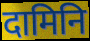
दामिनि